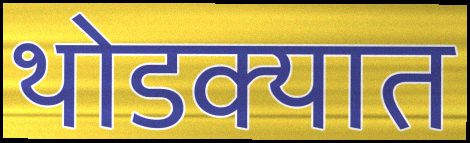
थोडक्यात